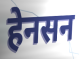
हेनसन